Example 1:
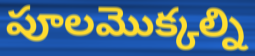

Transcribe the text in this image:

పూలమొక్కల్ని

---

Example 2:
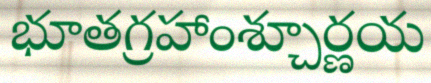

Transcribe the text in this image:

భూతగ్రహాంశ్చూర్ణయ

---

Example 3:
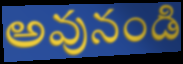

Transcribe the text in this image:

అవునండి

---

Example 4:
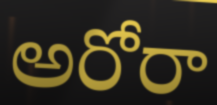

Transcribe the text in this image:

అరోరా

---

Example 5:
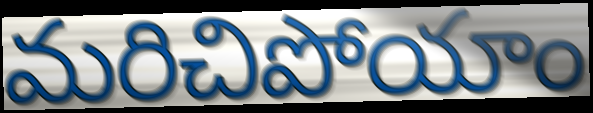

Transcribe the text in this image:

మరిచిపోయాం